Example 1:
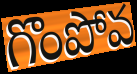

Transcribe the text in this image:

గొంపోవ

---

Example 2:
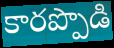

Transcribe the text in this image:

కారప్పొడి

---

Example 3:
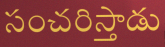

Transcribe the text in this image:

సంచరిస్తాడు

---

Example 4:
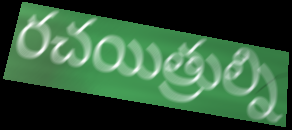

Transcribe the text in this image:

రచయిత్రుల్ని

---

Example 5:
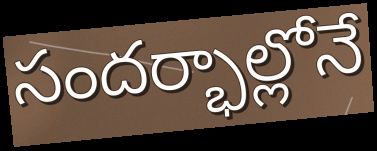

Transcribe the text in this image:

సందర్భాల్లోనే